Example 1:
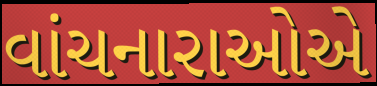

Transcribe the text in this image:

વાંચનારાઓએ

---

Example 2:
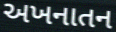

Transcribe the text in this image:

અખનાતન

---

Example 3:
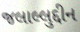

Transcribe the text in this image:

જલાલ્લુદ્દીન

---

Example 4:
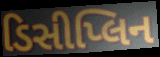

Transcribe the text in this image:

ડિસીપ્લિન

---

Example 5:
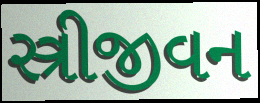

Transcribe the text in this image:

સ્ત્રીજીવન